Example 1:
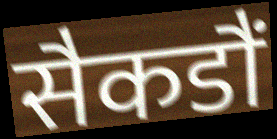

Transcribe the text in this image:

सैकडौं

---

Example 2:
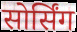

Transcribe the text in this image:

सोर्सिंग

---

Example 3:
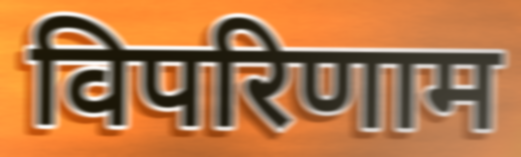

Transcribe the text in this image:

विपरिणाम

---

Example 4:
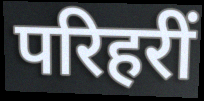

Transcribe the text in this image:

परिहरीं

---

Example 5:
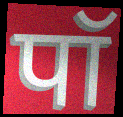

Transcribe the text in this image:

पॉ